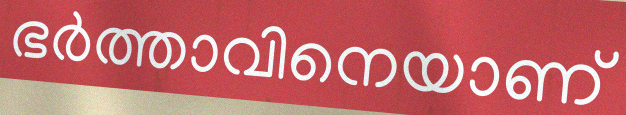
ഭർത്താവിനെയാണ്